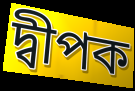
দ্বীপক